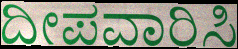
ದೀಪವಾರಿಸಿ